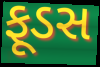
ફૂડસ